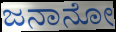
ಜನಾನೋ